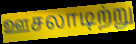
ஊசலாடிற்று